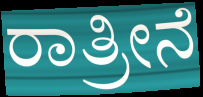
ರಾತ್ರೀನೆ